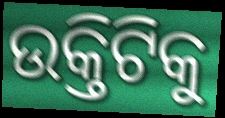
ଉକ୍ତିଟିକୁ